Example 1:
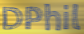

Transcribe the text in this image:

DPhil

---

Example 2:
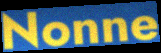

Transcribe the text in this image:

Nonne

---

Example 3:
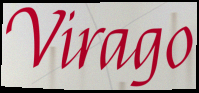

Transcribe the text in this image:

Virago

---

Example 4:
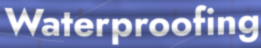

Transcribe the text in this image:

Waterproofing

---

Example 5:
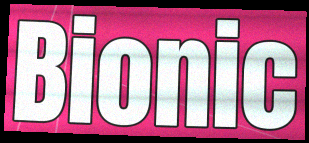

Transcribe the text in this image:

Bionic